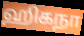
ஹிகநா